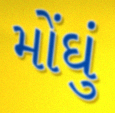
મોંઘું